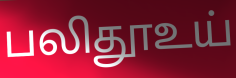
பலிதூஉய்